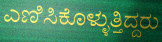
ಎಣಿಸಿಕೊಳ್ಳುತ್ತಿದ್ದರು